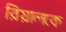
রিয়ালকে